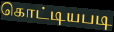
கொட்டியபடி